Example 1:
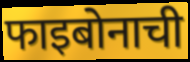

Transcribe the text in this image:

फाइबोनाची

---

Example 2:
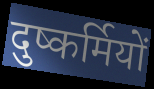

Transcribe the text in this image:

दुष्कर्मियों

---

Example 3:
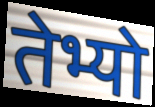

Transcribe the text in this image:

तेभ्यो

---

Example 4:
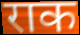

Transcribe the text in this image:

राक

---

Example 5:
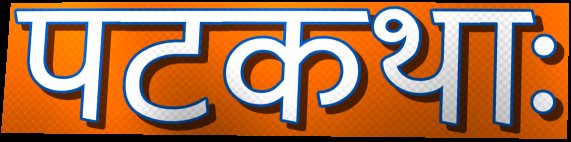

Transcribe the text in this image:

पटकथाः